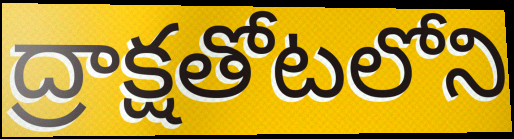
ద్రాక్షతోటలోని